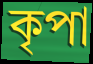
কৃপা